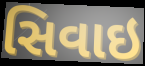
સિવાઇ